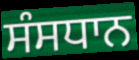
ਸੰਸਧਾਨ